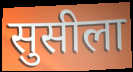
सुसीला